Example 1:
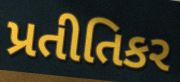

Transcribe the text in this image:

પ્રતીતિકર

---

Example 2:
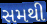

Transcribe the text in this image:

સમથી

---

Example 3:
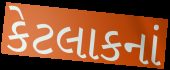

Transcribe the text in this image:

કેટલાકનાં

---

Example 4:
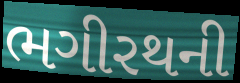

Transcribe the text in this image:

ભગીરથની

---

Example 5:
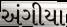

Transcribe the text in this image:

અંગીયા